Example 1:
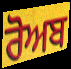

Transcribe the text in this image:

ਰੋਅਬ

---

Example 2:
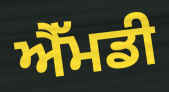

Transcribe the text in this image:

ਐੱਮਡੀ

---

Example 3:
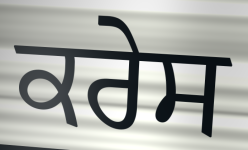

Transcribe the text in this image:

ਕਰੇਸ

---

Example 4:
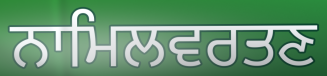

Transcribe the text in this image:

ਨਾਮਿਲਵਰਤਣ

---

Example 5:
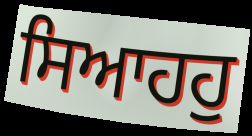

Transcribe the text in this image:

ਸਿਆਹਹੁ